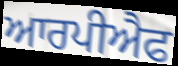
ਆਰਪੀਐਫ